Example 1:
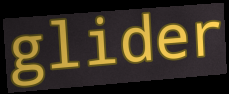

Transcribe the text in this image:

glider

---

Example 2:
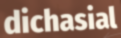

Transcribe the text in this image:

dichasial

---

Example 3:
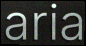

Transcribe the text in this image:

aria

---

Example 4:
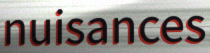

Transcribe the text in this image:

nuisances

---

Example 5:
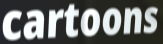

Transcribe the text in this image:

cartoons